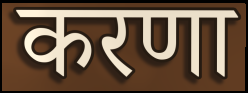
करणा